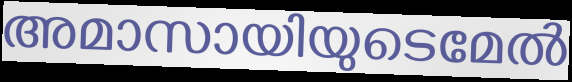
അമാസായിയുടെമേൽ